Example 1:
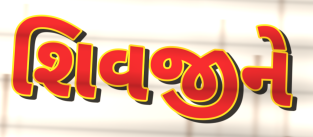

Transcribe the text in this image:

શિવજીને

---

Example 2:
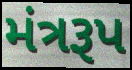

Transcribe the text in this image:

મંત્રરૂપ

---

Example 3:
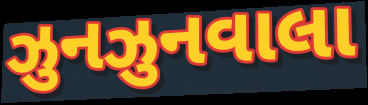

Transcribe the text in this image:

ઝુનઝુનવાલા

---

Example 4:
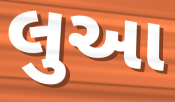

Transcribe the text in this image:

લુઆ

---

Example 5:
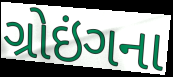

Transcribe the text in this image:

ગ્રોઇંગના